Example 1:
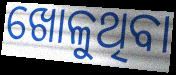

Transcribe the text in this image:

ଖୋଳୁଥିବା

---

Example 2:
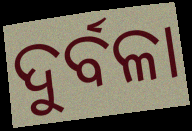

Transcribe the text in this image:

ଦୁର୍ବଳା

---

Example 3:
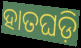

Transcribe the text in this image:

ହାତଘଡ଼ି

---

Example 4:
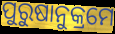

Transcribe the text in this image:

ପୁରୁଷାନୁକ୍ରମେ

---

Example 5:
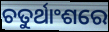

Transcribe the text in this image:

ଚତୁର୍ଥାଂଶରେ